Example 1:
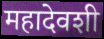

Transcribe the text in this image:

महादेवशी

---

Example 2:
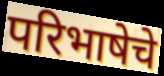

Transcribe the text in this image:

परिभाषेचे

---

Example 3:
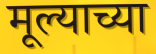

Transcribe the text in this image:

मूल्याच्या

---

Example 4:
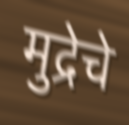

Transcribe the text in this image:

मुद्रेचे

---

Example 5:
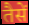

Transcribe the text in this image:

तैसें